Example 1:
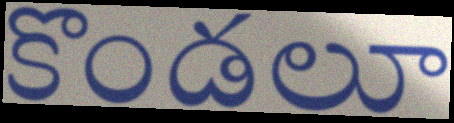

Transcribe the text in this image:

కొండలూ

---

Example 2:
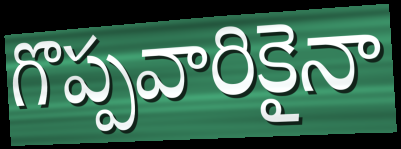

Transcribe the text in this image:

గొప్పవారికైనా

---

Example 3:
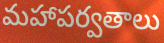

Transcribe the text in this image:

మహాపర్వతాలు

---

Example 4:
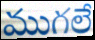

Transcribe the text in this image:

ముగలే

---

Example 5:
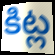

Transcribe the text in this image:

కిట్ల